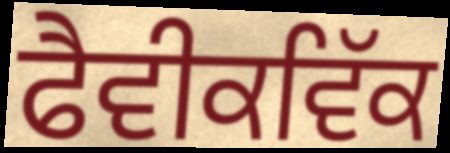
ਫੈਵੀਕਵਿੱਕ